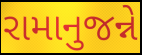
રામાનુજન્ને